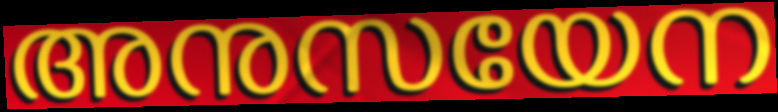
അനുസയേന